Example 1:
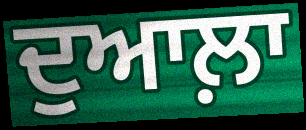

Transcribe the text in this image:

ਦੁਆਲ਼ਾ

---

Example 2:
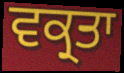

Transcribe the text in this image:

ਵਕ੍ਰਤਾ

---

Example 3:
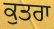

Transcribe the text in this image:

ਕੁਤਰਾ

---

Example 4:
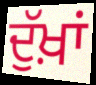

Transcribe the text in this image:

ਦੁੱਖ਼ਾਂ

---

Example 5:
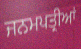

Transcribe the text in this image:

ਜਨਮਪਤ੍ਰੀਆਂ